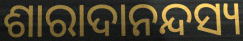
ଶାରାଦାନନ୍ଦସ୍ୟ